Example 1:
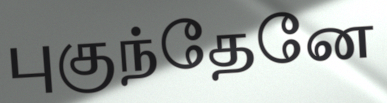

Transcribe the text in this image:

புகுந்தேனே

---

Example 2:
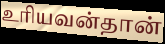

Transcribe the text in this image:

உரியவன்தான்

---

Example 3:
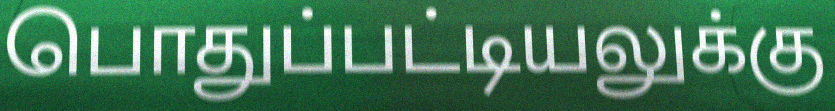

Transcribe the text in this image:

பொதுப்பட்டியலுக்கு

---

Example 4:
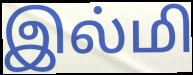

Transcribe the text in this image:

இல்மி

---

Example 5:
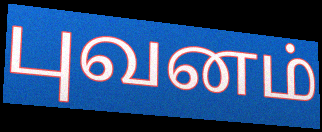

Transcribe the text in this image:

புவனம்